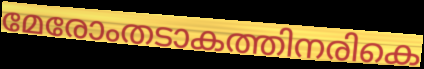
മേരോംതടാകത്തിനരികെ